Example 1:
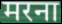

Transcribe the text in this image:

मरना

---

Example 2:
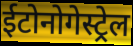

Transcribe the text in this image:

ईटोनोगेस्ट्रेल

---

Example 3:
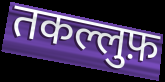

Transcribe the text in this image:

तकल्लुफ़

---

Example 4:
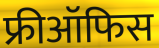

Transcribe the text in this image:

फ्रीऑफिस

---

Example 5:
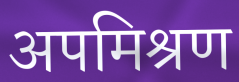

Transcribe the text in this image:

अपमिश्रण